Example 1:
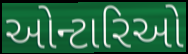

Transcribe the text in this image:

ઓન્ટારિઓ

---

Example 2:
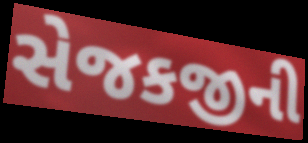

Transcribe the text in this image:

સેજકજીની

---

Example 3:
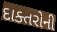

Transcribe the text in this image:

દાક્તરોની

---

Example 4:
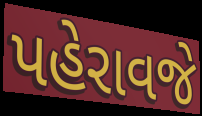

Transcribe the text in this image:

પહેરાવજે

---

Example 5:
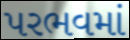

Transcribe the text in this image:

પરભવમાં